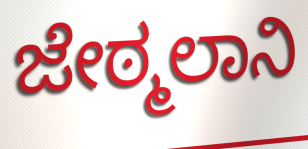
ಜೇಠ್ಮಲಾನಿ